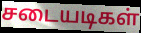
சடையடிகள்